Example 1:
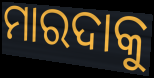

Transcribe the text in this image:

ମାରଦାକୁ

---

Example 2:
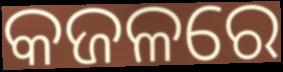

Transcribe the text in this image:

କଜଳରେ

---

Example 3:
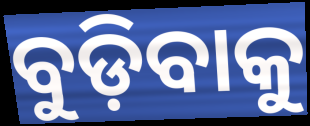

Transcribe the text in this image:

ବୁଡ଼ିବାକୁ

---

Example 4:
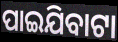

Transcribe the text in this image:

ପାଇଯିବାଟା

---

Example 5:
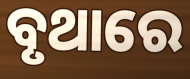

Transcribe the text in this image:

ବୃଥାରେ